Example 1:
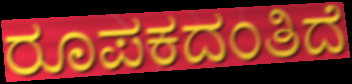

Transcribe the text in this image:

ರೂಪಕದಂತಿದೆ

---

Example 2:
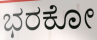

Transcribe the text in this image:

ಭರಕೋ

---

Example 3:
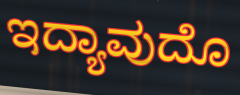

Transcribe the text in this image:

ಇದ್ಯಾವುದೊ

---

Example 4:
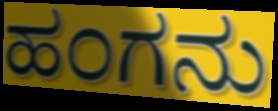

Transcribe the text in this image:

ಹಂಗನು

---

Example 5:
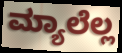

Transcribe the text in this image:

ಮ್ಯಾಲೆಲ್ಲ